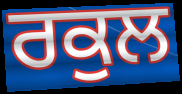
ਰਕੁਲ